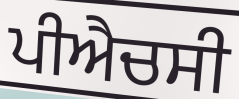
ਪੀਐਚਸੀ